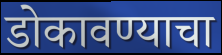
डोकावण्याचा